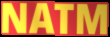
NATM